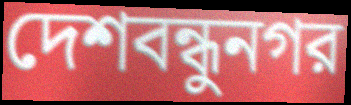
দেশবন্ধুনগর